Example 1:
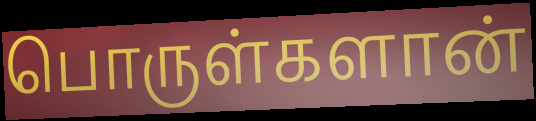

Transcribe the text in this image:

பொருள்களான்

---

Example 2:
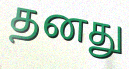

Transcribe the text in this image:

தனது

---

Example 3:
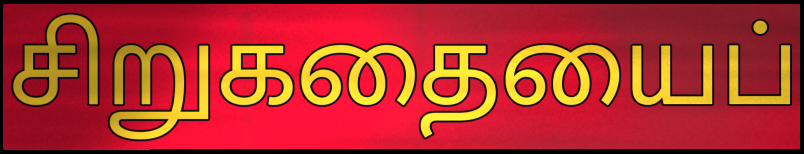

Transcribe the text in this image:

சிறுகதையைப்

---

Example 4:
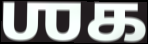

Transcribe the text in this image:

ஶக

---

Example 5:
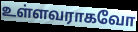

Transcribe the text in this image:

உள்ளவராகவோ